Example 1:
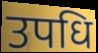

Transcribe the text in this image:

उपधि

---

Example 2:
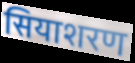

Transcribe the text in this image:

सियाशरण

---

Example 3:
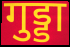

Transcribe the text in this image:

गुड्डा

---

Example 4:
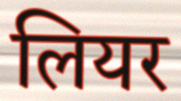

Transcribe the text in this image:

लियर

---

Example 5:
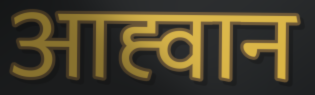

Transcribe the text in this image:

आह्वान